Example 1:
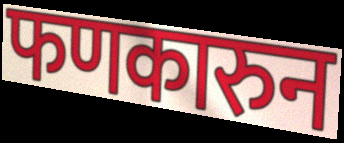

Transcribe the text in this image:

फणकारुन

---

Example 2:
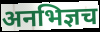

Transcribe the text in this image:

अनभिज्ञच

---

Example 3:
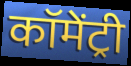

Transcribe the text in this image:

कॉमेंट्री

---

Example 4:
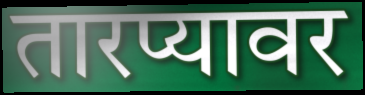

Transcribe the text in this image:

तारप्यावर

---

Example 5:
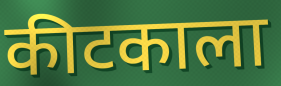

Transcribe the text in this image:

कीटकाला